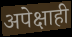
अपेक्षाही